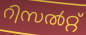
റിസൽറ്റ്